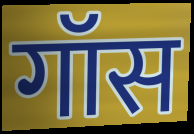
गॉस